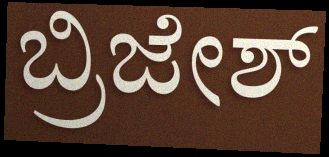
ಬ್ರಿಜೇಶ್